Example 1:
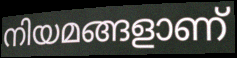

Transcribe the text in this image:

നിയമങ്ങളാണ്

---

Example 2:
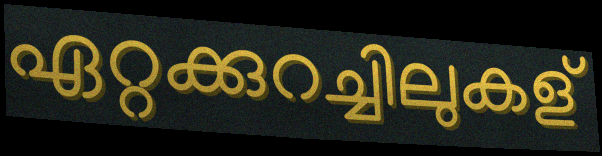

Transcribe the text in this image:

ഏറ്റക്കുറച്ചിലുകള്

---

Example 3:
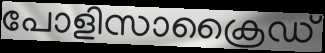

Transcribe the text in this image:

പോളിസാക്രൈഡ്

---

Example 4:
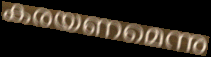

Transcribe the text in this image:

കരയണമെന്നു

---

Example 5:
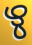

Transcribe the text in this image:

ഴു